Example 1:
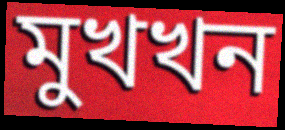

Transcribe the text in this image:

মুখখন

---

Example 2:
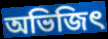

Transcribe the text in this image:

অভিজিৎ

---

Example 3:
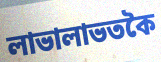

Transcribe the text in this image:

লাভালাভতকৈ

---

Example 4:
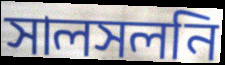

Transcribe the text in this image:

সালসলনি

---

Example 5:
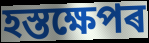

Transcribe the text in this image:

হস্তক্ষেপৰ